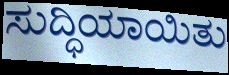
ಸುದ್ಧಿಯಾಯಿತು